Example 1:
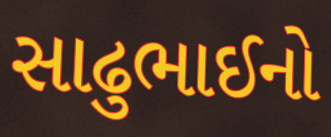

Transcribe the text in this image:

સાઢુભાઈનો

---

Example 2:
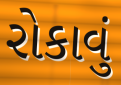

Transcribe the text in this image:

રોકાવું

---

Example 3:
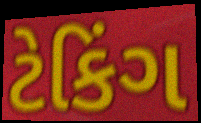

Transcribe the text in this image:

ટેકિંગ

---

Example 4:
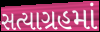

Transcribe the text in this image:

સત્યાગ્રહમાં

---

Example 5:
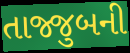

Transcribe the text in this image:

તાજ્જુબની